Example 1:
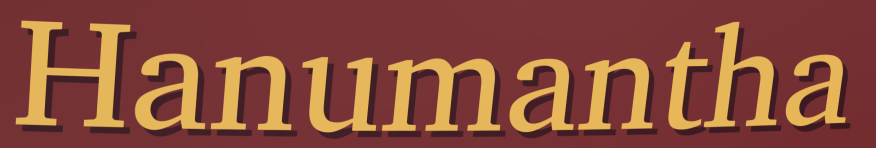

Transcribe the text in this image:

Hanumantha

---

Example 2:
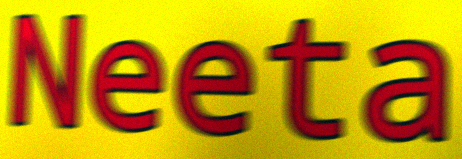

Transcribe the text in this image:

Neeta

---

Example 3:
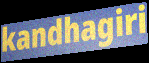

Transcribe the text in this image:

kandhagiri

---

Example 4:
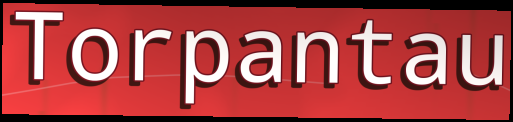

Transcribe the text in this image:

Torpantau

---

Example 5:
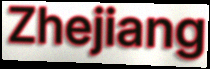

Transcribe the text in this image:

Zhejiang